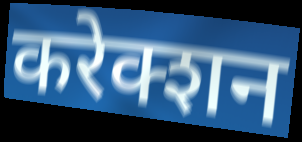
करेक्शन